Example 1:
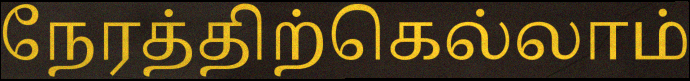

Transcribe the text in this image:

நேரத்திற்கெல்லாம்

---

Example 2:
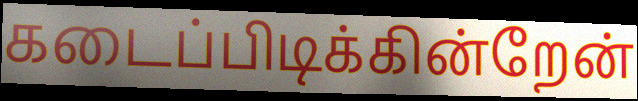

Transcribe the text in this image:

கடைப்பிடிக்கின்றேன்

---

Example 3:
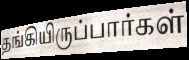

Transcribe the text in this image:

தங்கியிருப்பார்கள்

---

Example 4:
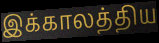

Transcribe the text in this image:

இக்காலத்திய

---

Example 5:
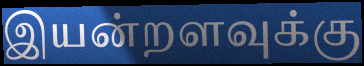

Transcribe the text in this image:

இயன்றளவுக்கு